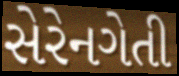
સેરેનગેતી